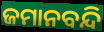
ଜମାନବନ୍ଦି